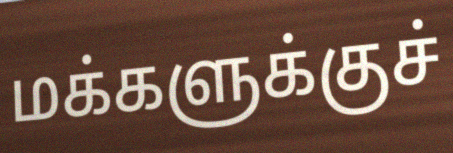
மக்களுக்குச்